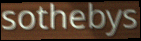
sothebys